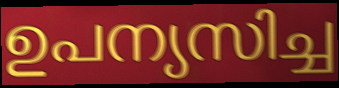
ഉപന്യസിച്ച